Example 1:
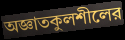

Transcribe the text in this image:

অজ্ঞাতকুলশীলের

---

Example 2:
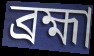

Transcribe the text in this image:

ব্রহ্মা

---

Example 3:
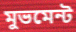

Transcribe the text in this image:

মুভমেন্ট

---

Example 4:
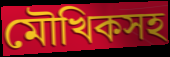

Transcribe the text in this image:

মৌখিকসহ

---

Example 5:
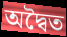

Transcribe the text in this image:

অদ্বৈত